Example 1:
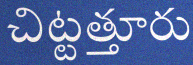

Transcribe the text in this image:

చిట్టత్తూరు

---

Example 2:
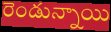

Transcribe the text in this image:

రెండున్నాయి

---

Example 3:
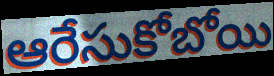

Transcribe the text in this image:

ఆరేసుకోబోయి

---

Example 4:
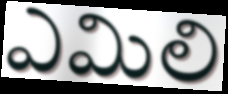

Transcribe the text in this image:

ఎమిలి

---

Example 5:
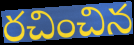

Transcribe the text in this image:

రచించిన